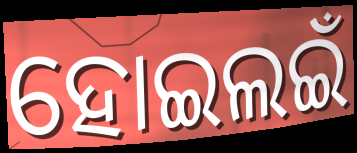
ହୋଇଲଇଁ